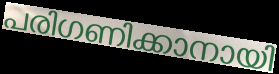
പരിഗണിക്കാനായി